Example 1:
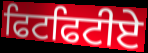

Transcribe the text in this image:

ਫਿਟਫਿਟੀਏ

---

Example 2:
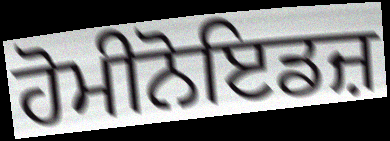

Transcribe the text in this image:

ਹੋਮੀਨੋਇਡਜ਼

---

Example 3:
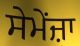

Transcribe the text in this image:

ਸੇਮੇਂਜ਼ਾ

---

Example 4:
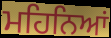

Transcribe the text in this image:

ਮਹਿਨਿਆਂ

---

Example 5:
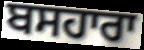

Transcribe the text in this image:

ਬਸਹਾਰਾ